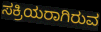
ಸಕ್ರಿಯರಾಗಿರುವ